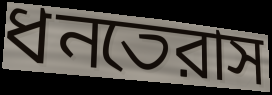
ধনতেরাস